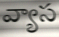
వ్యాస